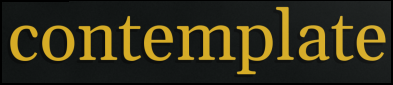
contemplate